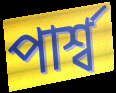
পার্শ্ব